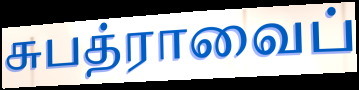
சுபத்ராவைப்